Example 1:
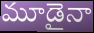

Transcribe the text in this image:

మూడైనా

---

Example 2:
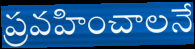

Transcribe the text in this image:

ప్రవహించాలనే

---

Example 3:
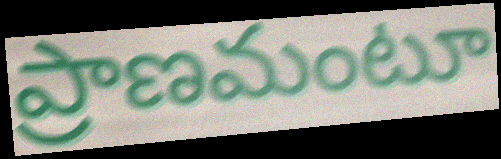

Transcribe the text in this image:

ప్రాణమంటూ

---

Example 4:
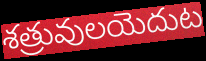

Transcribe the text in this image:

శత్రువులయెదుట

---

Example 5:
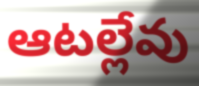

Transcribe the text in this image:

ఆటల్లేవు